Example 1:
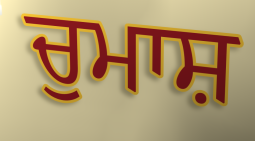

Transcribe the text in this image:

ਚੁਮਾਸ਼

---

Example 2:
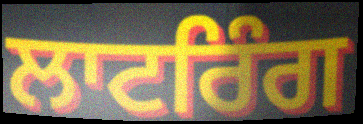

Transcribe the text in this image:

ਲਾਟਰਿੰਗ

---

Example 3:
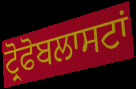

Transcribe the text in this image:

ਟ੍ਰੋਫੋਬਲਾਸਟਾਂ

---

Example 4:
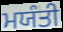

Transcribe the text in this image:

ਮਯੰਤੀ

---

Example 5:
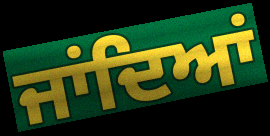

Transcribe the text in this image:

ਜਾਂਦਿਆਂ